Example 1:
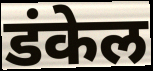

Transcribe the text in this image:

डंकेल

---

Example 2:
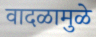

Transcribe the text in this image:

वादळामुळे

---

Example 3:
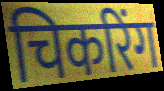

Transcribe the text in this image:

चिकरिंग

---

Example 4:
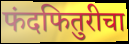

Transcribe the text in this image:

फंदफितुरीचा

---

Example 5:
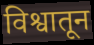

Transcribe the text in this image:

विश्वातून